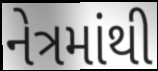
નેત્રમાંથી